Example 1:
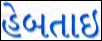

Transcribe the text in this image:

હેબતાઇ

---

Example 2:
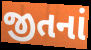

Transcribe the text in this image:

જીતનાં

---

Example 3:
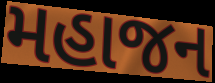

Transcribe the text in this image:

મહાજન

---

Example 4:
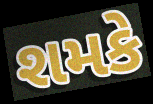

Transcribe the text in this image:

શમકે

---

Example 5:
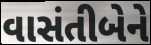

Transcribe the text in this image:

વાસંતીબેને